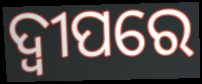
ଦ୍ୱୀପରେ